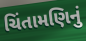
ચિંતામણિનું